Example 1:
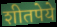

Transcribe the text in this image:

शीतपेये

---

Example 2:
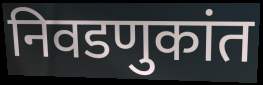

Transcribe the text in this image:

निवडणुकांत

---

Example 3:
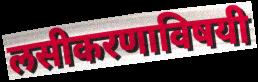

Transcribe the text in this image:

लसीकरणाविषयी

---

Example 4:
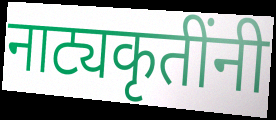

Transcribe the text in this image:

नाट्यकृतींनी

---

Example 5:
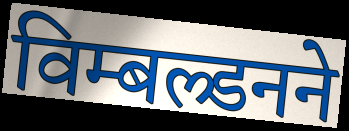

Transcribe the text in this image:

विम्बल्डनने